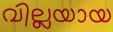
വില്ലയായ